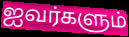
ஐவர்களும்